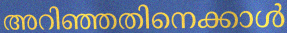
അറിഞ്ഞതിനെക്കാൾ